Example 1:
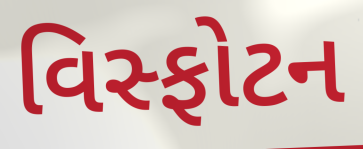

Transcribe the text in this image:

વિસ્ફોટન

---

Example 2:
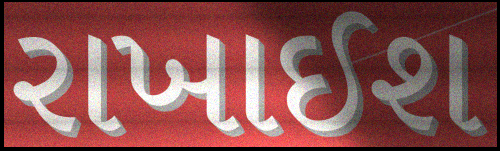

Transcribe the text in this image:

રાખાઈશ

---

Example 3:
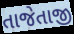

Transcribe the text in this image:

તાજેતાજી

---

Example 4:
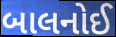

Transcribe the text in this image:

બાલનોઈ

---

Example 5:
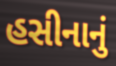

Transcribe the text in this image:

હસીનાનું